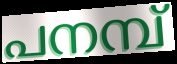
പനമ്പ്